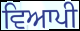
ਵਿਆਪੀ